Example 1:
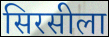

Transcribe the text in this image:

सिरसीला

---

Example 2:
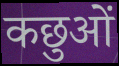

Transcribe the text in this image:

कछुओं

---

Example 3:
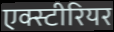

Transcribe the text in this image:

एक्स्टीरियर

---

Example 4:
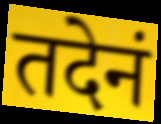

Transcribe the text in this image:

तदेनं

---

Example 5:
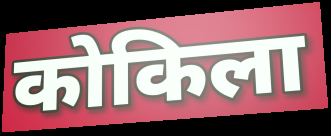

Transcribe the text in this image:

कोकिला